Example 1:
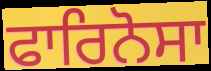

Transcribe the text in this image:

ਫਾਰਿਨੋਸਾ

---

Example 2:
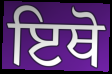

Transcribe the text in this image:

ਇਥੋ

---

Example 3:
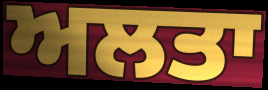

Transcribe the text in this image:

ਅਲਤਾ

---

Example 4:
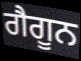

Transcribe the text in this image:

ਗੈਗੂਨ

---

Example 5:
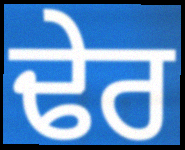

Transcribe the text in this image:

ਢੇਰ